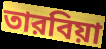
তারবিয়া